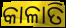
କାଳାତି